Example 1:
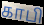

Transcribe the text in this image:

காபி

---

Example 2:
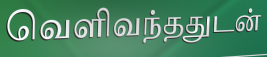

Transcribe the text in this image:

வெளிவந்ததுடன்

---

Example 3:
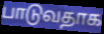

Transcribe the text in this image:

பாடுவதாக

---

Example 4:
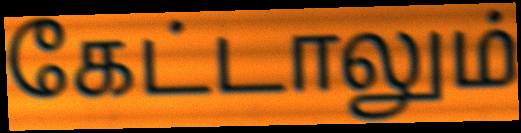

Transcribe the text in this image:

கேட்டாலும்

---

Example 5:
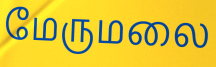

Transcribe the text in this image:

மேருமலை